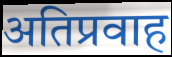
अतिप्रवाह